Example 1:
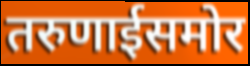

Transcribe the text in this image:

तरुणाईसमोर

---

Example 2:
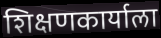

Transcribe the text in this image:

शिक्षणकार्याला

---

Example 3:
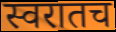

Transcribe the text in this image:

स्वरातच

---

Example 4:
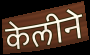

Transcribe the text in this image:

केलीने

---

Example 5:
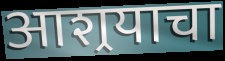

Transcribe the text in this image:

आश्रयाचा